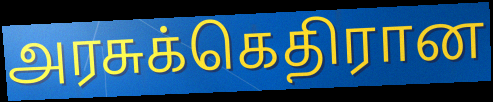
அரசுக்கெதிரான